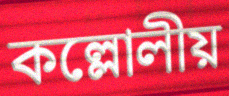
কল্লোলীয়